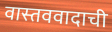
वास्तववादाची